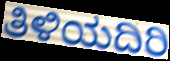
ತಿಳಿಯದಿರಿ